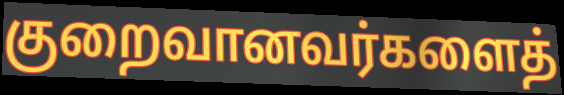
குறைவானவர்களைத்